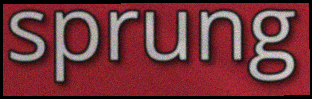
sprung